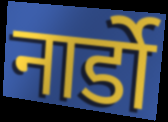
नार्डो